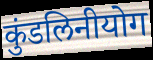
कुंडलिनीयोग